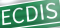
ECDIS